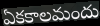
ఏకకాలమందు